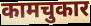
कामचुकार